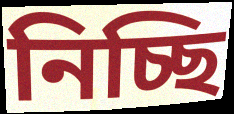
নিচ্ছি